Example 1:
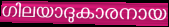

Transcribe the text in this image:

ഗിലയാദുകാരനായ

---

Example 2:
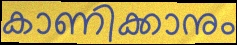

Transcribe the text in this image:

കാണിക്കാനും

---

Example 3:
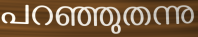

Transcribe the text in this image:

പറഞ്ഞുതന്നു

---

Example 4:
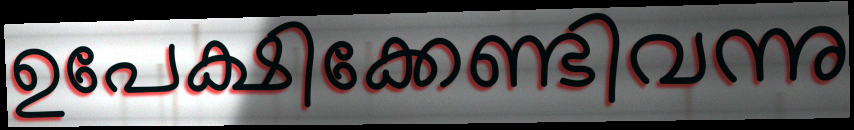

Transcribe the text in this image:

ഉപേക്ഷിക്കേണ്ടിവന്നു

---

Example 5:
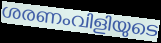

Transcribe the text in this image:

ശരണംവിളിയുടെ